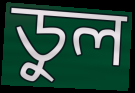
ডুল